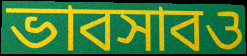
ভাবসাবও